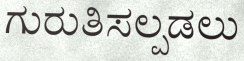
ಗುರುತಿಸಲ್ಪಡಲು